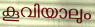
കൂവിയാലും